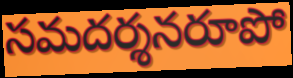
సమదర్శనరూపో